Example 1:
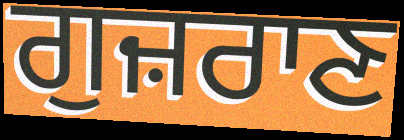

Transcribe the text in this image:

ਗੁਜ਼ਰਾਣ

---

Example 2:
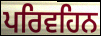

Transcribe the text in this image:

ਪਰਿਵਹਿਨ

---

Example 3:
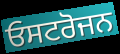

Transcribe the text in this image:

ਓਸਟਰੋਜਨ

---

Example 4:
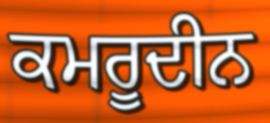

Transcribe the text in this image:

ਕਮਰੂਦੀਨ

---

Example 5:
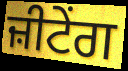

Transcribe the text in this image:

ਜ਼ੀਟੇਂਗ